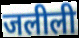
जलीली